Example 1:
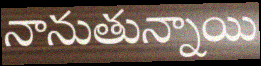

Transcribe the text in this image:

నానుతున్నాయి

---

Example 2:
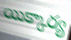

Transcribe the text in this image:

యిక్కార్య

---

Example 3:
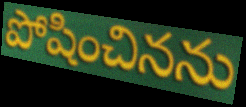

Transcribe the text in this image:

పోషించినను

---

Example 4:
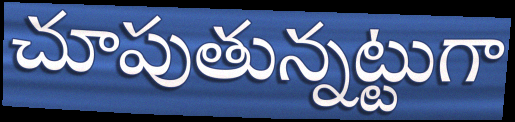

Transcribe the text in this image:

చూపుతున్నట్టుగా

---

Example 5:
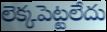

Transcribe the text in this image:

లెక్కపెట్టలేదు